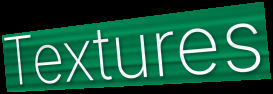
Textures